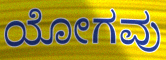
ಯೋಗವು